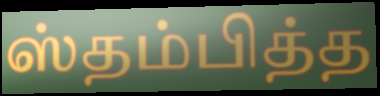
ஸ்தம்பித்த